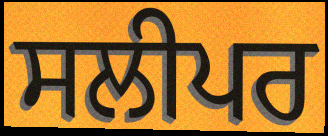
ਸਲੀਪਰ